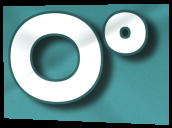
ଠଂ